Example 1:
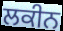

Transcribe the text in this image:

ਲਕੀਨ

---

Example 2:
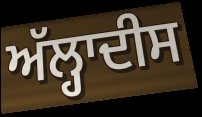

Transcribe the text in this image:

ਅੱਲ੍ਹਾਦੀਸ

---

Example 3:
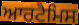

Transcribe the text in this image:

ਆਰਟੈਮਿਸ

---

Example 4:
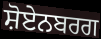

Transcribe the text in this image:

ਸ਼ੋਏਨਬਰਗ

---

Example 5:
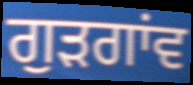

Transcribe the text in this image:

ਗੁੜਗਾਂਵ